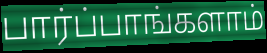
பார்ப்பாங்களாம்